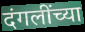
दंगलींच्या